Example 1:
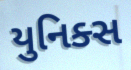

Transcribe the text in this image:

યુનિક્સ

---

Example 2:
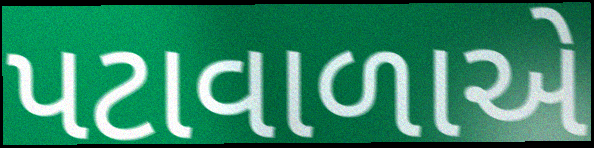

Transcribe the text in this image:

પટાવાળાએ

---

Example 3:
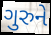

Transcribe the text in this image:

ગુરુને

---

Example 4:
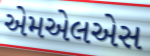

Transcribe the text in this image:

એમએલએસ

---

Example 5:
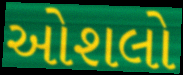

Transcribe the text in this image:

ઓશલો